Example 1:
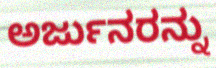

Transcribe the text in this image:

ಅರ್ಜುನರನ್ನು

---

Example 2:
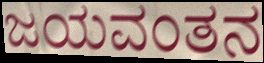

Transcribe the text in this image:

ಜಯವಂತನ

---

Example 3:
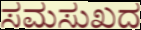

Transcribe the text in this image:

ಸಮಸುಖದ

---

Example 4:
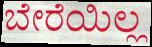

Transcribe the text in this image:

ಬೇರೆಯಿಲ್ಲ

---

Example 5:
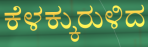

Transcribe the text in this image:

ಕೆಳಕ್ಕುರುಳಿದ